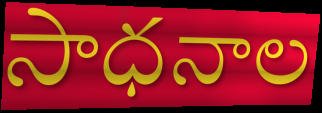
సాధనాల